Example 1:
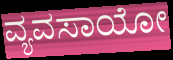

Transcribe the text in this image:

ವ್ಯವಸಾಯೋ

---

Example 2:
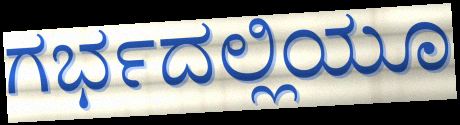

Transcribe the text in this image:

ಗರ್ಭದಲ್ಲಿಯೂ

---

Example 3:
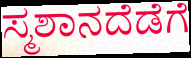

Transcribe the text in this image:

ಸ್ಮಶಾನದೆಡೆಗೆ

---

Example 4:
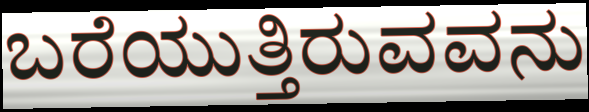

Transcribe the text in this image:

ಬರೆಯುತ್ತಿರುವವನು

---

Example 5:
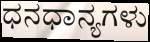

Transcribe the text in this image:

ಧನಧಾನ್ಯಗಳು